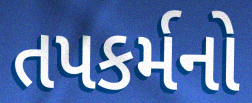
તપકર્મનો